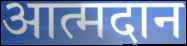
आत्मदान